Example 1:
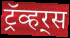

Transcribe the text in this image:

ट्रॅव्हर्स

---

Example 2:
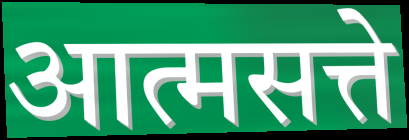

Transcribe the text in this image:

आत्मसत्ते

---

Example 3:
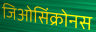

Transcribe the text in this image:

जिओसिंक्रोनस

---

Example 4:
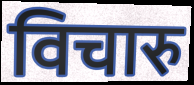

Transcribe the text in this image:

विचारु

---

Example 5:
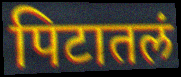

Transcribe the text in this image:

पिटातलं